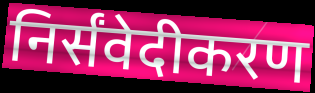
निर्संवेदीकरण